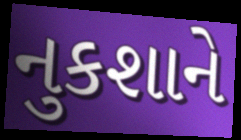
નુકશાને